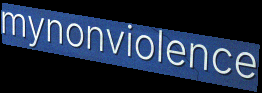
mynonviolence